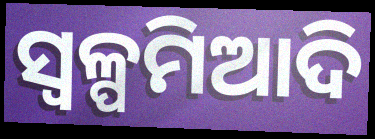
ସ୍ବଳ୍ପମିଆଦି